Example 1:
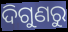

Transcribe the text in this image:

ଦିଗୁଣରୁ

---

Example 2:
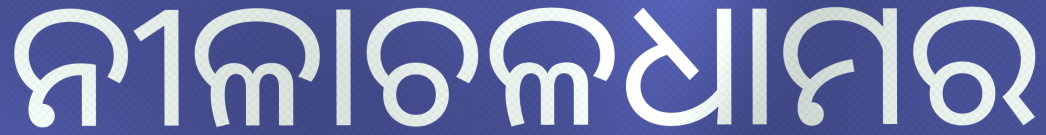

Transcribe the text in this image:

ନୀଳାଚଳଧାମର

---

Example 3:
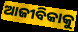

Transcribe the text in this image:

ଆଜୀବିକାକୁ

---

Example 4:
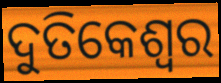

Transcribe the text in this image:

ଦୁତିକେଶ୍ୱର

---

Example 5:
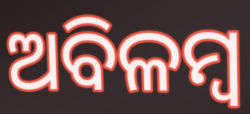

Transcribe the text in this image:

ଅବିଳମ୍ବ